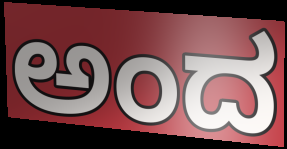
ಅಂದ